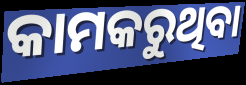
କାମକରୁଥିବା